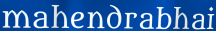
mahendrabhai